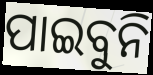
ପାଇବୁନି